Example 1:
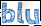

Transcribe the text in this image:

blu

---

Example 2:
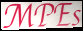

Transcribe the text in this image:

MPEs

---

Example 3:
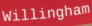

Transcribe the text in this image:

Willingham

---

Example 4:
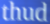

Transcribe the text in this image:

thud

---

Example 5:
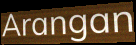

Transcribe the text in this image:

Arangan